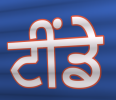
ਟੀਂਡੇ